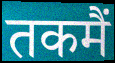
तकमैं